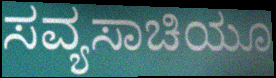
ಸವ್ಯಸಾಚಿಯೂ